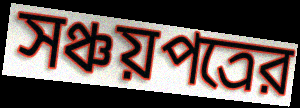
সঞ্চয়পত্রের